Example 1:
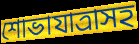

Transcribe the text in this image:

শোভাযাত্রাসহ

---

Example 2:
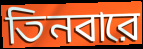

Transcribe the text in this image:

তিনবারে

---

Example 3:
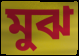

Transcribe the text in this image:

মুঝ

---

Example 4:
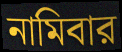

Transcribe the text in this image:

নামিবার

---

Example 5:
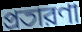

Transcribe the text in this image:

প্রতারণা